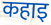
कहाइ